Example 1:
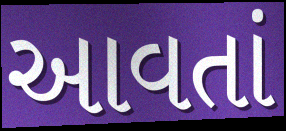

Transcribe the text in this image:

આવતાં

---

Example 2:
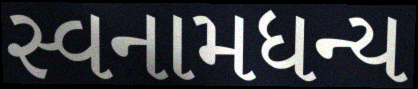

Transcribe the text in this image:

સ્વનામધન્ય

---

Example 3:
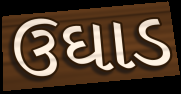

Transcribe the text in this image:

ઉઘાડ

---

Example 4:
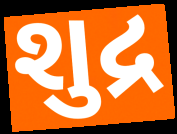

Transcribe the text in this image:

શુદ્ર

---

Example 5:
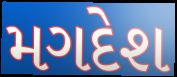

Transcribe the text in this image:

મગદેશ